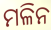
ମଳିନ